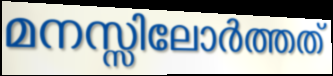
മനസ്സിലോർത്തത്